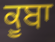
ਕੂਬਾ